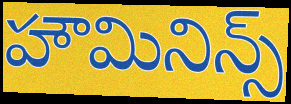
హౌమినిన్స్